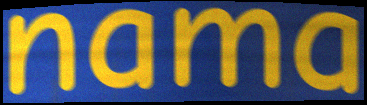
nama